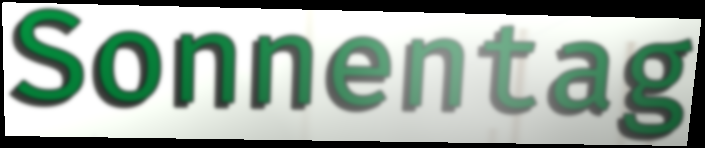
Sonnentag